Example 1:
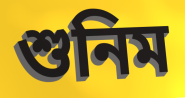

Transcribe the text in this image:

শুনিম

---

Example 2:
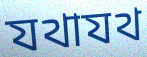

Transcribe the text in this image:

যথাযথ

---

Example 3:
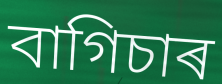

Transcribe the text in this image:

বাগিচাৰ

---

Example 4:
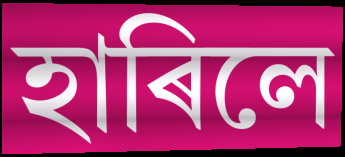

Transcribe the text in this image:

হাৰিলে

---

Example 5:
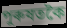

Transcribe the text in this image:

পুৰুষতকৈ